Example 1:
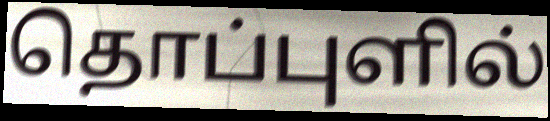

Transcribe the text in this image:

தொப்புளில்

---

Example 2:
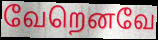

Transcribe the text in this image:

வேறெனவே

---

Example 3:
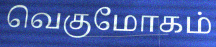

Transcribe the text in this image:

வெகுமோகம்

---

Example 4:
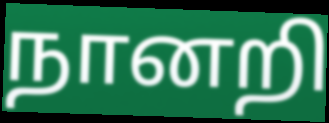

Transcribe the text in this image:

நானறி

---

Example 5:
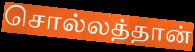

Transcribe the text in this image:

சொல்லத்தான்